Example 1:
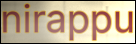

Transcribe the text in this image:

nirappu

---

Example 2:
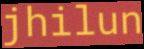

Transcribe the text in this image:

jhilun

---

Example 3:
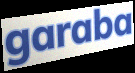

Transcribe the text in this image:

garaba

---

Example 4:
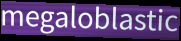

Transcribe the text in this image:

megaloblastic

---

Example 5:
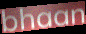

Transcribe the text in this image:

bhaan